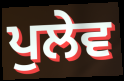
ਪੁਲੇਵ